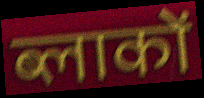
ब्लाकों